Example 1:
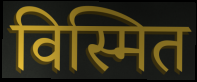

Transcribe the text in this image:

विस्मित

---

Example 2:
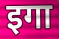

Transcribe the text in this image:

इगा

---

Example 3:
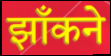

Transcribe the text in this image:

झाँकने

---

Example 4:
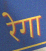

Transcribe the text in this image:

रेगा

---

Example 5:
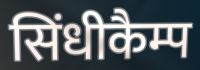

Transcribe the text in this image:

सिंधीकैम्प